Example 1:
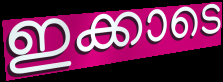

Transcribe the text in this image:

ഇക്കാടെ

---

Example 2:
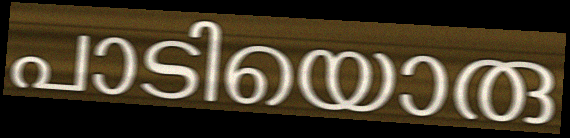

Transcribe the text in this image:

പാടിയൊരു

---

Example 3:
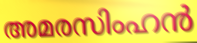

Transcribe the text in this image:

അമരസിംഹൻ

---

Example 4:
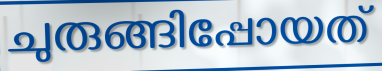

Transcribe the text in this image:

ചുരുങ്ങിപ്പോയത്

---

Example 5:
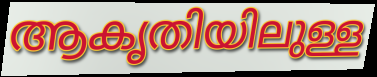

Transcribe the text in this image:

ആകൃതിയിലുള്ള